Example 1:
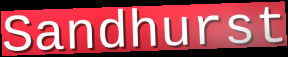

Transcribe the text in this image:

Sandhurst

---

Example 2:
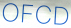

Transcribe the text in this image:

OFCD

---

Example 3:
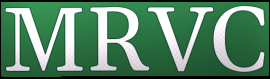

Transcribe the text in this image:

MRVC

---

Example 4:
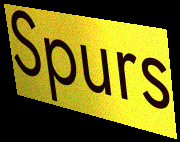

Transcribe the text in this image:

Spurs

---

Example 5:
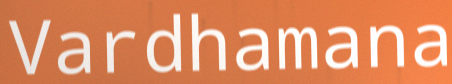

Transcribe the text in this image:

Vardhamana